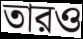
তারও